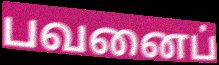
பவனைப்